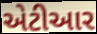
એટીઆર